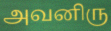
அவனிரு